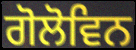
ਗੋਲੋਵਿਨ